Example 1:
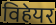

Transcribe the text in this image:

विहेयर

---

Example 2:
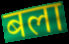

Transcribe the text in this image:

बला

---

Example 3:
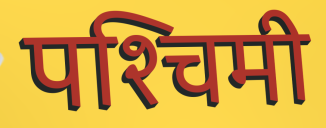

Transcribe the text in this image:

पश्चिमी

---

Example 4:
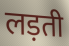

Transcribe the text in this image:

लड़ती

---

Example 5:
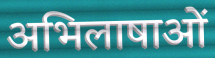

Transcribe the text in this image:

अभिलाषाओं